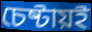
চেষ্টায়ই